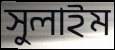
সুলাইম